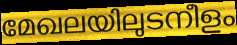
മേഖലയിലുടനീളം